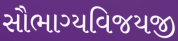
સૌભાગ્યવિજયજી